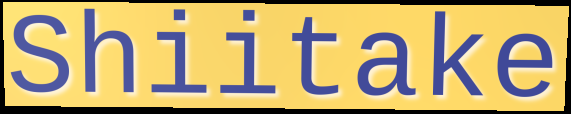
Shiitake